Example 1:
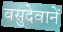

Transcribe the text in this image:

वसुदेवानें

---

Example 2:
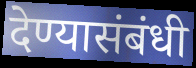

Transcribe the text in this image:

देण्यासंबंधी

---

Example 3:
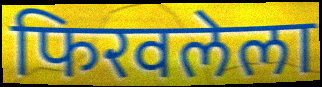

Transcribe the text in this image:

फिरवलेला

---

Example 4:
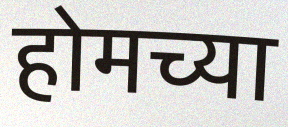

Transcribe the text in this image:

होमच्या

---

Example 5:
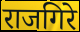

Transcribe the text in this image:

राजगिरे